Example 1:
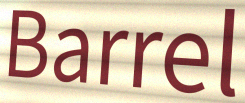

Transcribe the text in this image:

Barrel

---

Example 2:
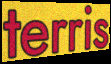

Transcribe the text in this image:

terris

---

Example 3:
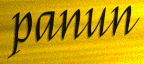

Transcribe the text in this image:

panun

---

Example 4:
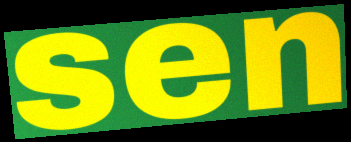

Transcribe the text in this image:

sen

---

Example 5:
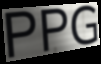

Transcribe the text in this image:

PPG